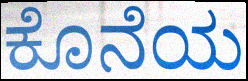
ಕೊನೆಯ